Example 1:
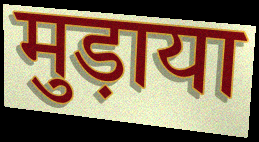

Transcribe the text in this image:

मुड़ाया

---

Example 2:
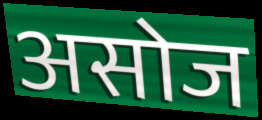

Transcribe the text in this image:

असोज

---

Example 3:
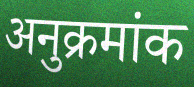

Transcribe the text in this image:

अनुक्रमांक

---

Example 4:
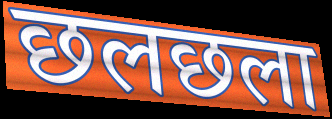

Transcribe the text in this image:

छलछला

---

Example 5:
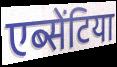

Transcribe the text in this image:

एब्सेंटिया